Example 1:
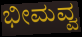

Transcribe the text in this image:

ಭೀಮವ್ವ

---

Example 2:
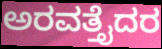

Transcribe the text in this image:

ಅರವತ್ತೈದರ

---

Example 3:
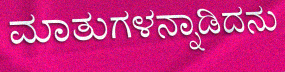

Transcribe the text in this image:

ಮಾತುಗಳನ್ನಾಡಿದನು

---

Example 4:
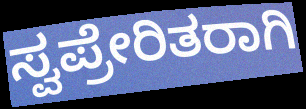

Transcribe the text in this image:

ಸ್ವಪ್ರೇರಿತರಾಗಿ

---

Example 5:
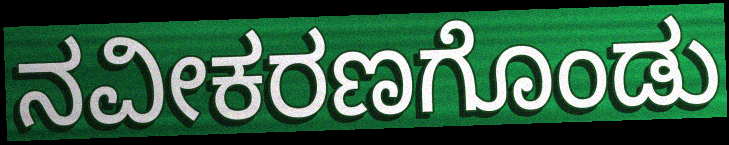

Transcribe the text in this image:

ನವೀಕರಣಗೊಂಡು